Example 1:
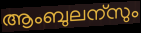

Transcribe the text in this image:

ആംബുലന്സും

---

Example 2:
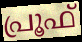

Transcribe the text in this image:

പ്രൂഫ്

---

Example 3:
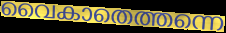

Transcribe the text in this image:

വൈകാതെത്തന്നെ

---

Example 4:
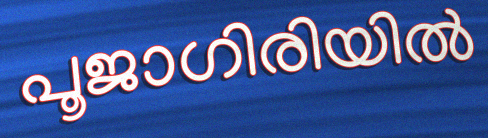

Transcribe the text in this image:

പൂജാഗിരിയിൽ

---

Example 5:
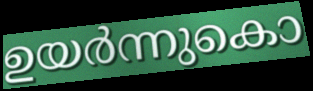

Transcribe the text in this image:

ഉയർന്നുകൊ